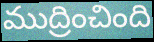
ముద్రించింది